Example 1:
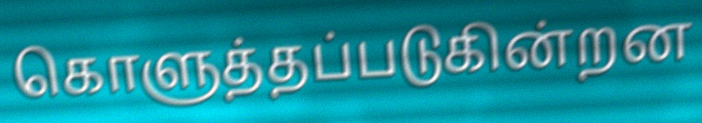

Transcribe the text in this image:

கொளுத்தப்படுகின்றன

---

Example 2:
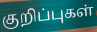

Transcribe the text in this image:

குறிப்புகள்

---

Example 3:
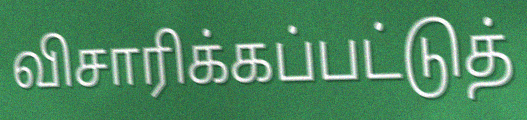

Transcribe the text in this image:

விசாரிக்கப்பட்டுத்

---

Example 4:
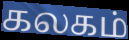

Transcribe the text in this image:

கலகம்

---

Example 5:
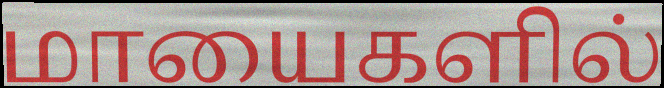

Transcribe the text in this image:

மாயைகளில்